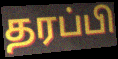
தரப்பி